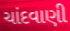
ચાંદવાણી